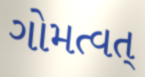
ગોમત્વત્